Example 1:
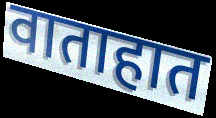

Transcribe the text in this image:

वाताहात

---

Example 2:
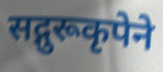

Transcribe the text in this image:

सद्गुरूकृपेने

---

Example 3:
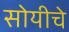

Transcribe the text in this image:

सोयीचे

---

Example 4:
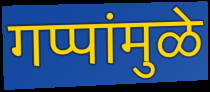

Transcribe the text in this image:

गप्पांमुळे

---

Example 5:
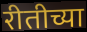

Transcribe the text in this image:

रीतीच्या